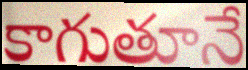
కాగుతూనే